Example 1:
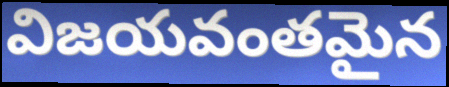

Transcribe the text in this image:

విజయవంతమైన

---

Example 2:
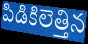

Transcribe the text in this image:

పిడికిలెత్తిన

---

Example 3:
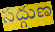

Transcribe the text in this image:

సద్గుణ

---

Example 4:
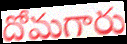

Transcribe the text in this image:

దోమగారు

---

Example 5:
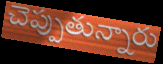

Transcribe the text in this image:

చెప్పుతున్నారు